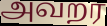
அவறர